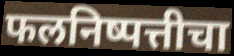
फलनिष्पत्तीचा